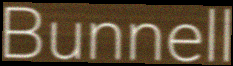
Bunnell